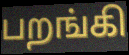
பறங்கி